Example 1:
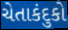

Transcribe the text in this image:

ચેતાકંદુકો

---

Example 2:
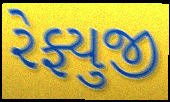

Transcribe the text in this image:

રેફ્યુજી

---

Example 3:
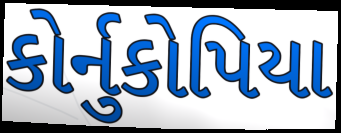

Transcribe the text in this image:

કોર્નુકોપિયા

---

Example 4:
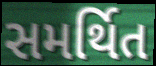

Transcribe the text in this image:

સમર્થિત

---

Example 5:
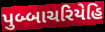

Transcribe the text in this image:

પુબ્બાચરિયેહિ